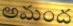
అమంద